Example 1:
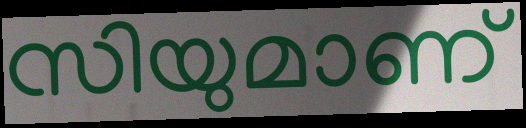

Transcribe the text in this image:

സിയുമാണ്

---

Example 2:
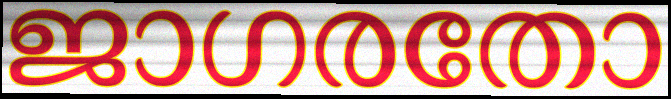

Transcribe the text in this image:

ജാഗരതോ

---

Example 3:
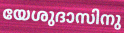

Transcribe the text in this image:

യേശുദാസിനു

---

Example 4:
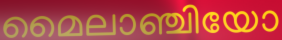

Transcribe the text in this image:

മൈലാഞ്ചിയോ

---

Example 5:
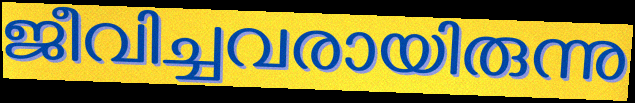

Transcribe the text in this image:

ജീവിച്ചവരായിരുന്നു